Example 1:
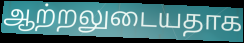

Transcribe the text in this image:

ஆற்றலுடையதாக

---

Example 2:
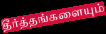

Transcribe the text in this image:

தீர்த்தங்களையும்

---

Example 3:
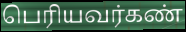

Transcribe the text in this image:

பெரியவர்கண்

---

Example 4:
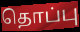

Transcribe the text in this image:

தொப்பு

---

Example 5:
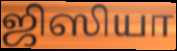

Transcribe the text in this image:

ஜிஸியா